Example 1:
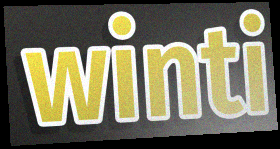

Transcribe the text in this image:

winti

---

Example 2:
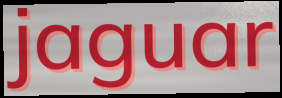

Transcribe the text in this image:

jaguar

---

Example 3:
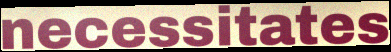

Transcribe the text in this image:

necessitates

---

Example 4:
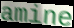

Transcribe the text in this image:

amine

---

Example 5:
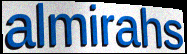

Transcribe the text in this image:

almirahs